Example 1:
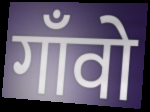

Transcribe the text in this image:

गाँवो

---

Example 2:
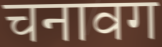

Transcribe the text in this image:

चनावग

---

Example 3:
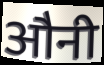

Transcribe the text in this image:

औनी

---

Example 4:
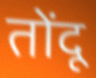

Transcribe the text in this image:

तोंदू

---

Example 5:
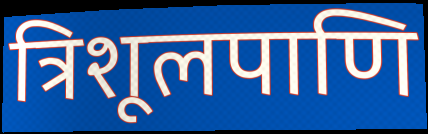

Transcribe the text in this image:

त्रिशूलपाणि